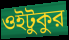
ওইটুকুর